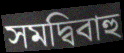
সমদ্বিবাহু